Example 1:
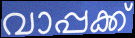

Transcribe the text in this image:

വാപ്പക്ക്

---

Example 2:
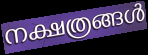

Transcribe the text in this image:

നക്ഷത്രങ്ങൾ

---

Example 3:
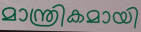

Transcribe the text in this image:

മാന്ത്രികമായി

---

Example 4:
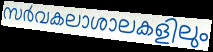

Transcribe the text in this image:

സർവകലാശാലകളിലും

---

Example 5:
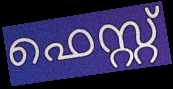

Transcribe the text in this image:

ഫെസ്റ്റ്